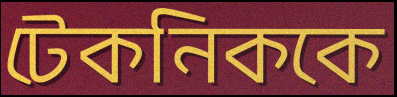
টেকনিককে